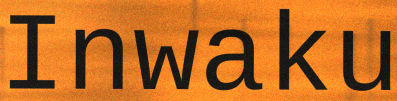
Inwaku